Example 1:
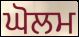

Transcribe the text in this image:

ਘੋਲਮ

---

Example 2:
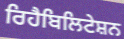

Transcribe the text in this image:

ਰਿਹੈਬਿਲਿਟੇਸ਼ਨ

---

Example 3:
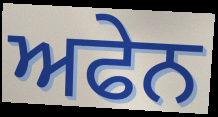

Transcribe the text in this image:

ਅਫੇਨ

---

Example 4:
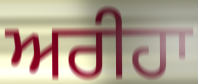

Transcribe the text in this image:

ਅਰੀਹਾ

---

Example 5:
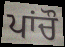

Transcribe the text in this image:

ਪਾਂਚੌ